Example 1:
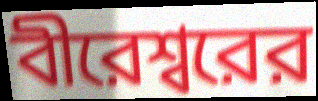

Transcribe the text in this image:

বীরেশ্বরের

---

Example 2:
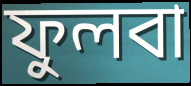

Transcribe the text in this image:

ফুলবা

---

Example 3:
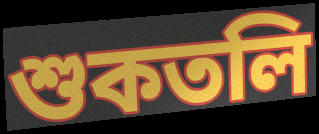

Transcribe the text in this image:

শুকতলি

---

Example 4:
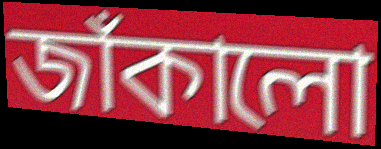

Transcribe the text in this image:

জাঁকালো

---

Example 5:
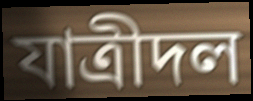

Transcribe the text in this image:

যাত্রীদল